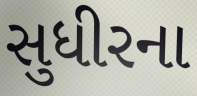
સુધીરના